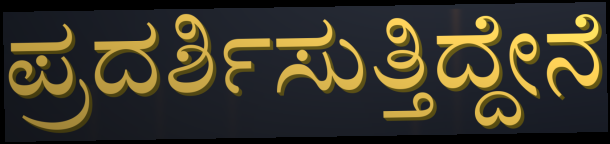
ಪ್ರದರ್ಶಿಸುತ್ತಿದ್ದೇನೆ